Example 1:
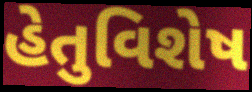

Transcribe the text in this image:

હેતુવિશેષ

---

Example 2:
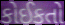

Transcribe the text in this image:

કોઈકતો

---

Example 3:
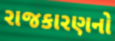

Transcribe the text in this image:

રાજકારણનો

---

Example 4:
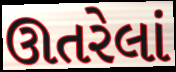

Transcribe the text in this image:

ઊતરેલાં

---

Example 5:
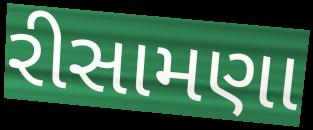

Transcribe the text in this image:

રીસામણા